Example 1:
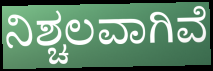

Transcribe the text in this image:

ನಿಶ್ಚಲವಾಗಿವೆ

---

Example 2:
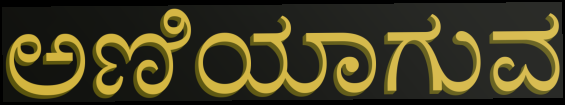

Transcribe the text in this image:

ಅಣಿಯಾಗುವ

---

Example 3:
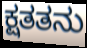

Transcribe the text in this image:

ಕ್ಷತತನು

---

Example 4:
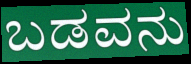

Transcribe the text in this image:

ಬಡವನು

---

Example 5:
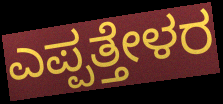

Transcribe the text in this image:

ಎಪ್ಪತ್ತೇಳರ